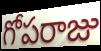
గోపరాజు